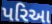
પરિઆ